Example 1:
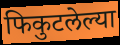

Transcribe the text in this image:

फिकुटलेल्या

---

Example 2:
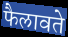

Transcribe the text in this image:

फैलावते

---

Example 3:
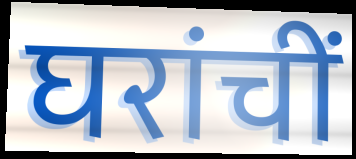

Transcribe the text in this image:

घरांचीं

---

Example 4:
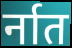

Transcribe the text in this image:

र्नात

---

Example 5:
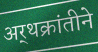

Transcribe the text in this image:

अर्थक्रांतीने